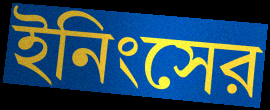
ইনিংসের